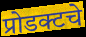
प्रोडक्टचे